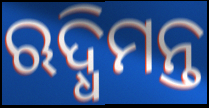
ଋଦ୍ଧିମନ୍ତ